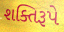
શક્તિરૂપે